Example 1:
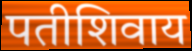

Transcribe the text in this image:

पतीशिवाय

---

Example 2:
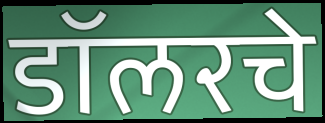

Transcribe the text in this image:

डॉलरचे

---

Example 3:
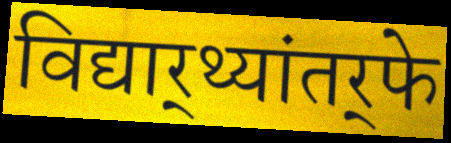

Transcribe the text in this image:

विद्यार्थ्यांतर्फे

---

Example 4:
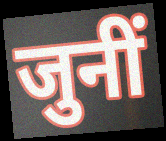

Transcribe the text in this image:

जुनीं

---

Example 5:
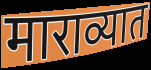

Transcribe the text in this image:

माराव्यात